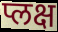
प्लक्ष